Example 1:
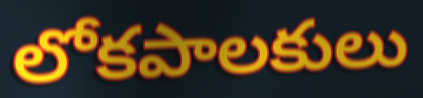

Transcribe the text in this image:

లోకపాలకులు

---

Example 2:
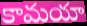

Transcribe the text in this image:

కామయా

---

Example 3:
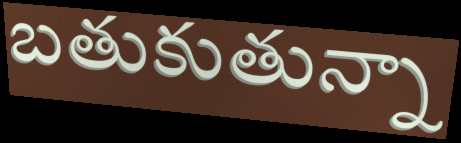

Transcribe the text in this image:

బతుకుతున్నా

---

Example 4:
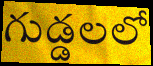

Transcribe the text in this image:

గుడ్డలలో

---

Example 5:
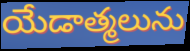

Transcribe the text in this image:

యేడాత్మలును